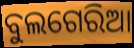
ବୁଲଗେରିଆ